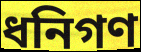
ধনিগণ